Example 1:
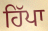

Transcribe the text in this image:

ਹਿੱਪਾ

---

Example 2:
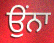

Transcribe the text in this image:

ਉੰਨਾ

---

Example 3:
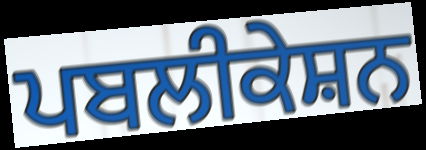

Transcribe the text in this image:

ਪਬਲੀਕੇਸ਼ਨ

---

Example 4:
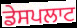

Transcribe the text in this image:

ਡੇਸਪਲਾਟ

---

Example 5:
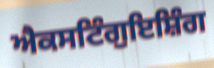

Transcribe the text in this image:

ਐਕਸਟਿੰਗੁਇਸ਼ਿੰਗ